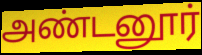
அண்டனூர்